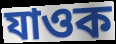
যাওক